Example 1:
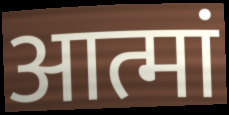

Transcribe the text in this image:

आत्मां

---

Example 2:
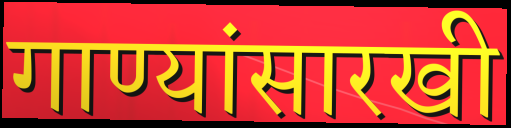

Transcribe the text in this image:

गाण्यांसारखी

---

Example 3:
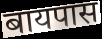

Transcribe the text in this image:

बायपास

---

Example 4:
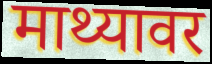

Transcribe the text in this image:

माथ्यावर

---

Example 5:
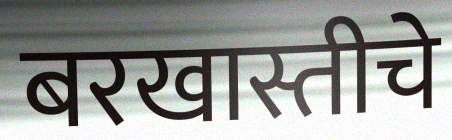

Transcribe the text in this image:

बरखास्तीचे